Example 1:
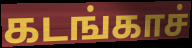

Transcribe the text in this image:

கடங்காச்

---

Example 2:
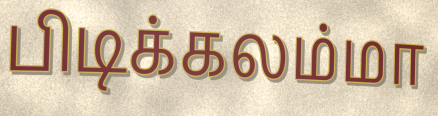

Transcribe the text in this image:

பிடிக்கலம்மா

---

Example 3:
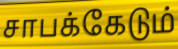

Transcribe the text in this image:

சாபக்கேடும்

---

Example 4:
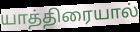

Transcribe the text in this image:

யாத்திரையால்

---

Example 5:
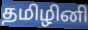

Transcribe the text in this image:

தமிழினி